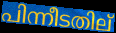
പിന്നീടതില്